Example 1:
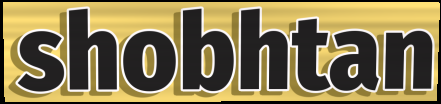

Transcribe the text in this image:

shobhtan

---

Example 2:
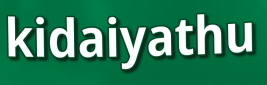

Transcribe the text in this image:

kidaiyathu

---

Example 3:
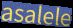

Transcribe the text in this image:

asalele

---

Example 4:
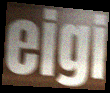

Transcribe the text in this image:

eigi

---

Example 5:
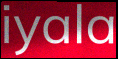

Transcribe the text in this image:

iyala